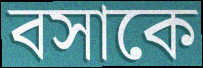
বসাকে